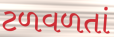
ટળવળતાં